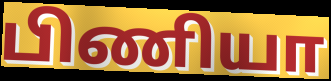
பிணியா